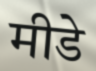
मीडे